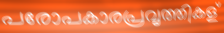
പരോപകാരപ്രവൃത്തികള്